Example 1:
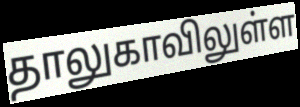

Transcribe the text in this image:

தாலுகாவிலுள்ள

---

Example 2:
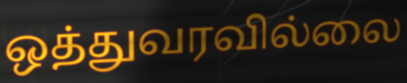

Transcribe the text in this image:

ஒத்துவரவில்லை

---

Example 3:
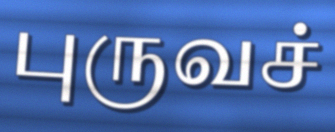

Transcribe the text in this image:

புருவச்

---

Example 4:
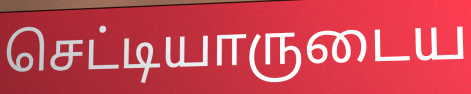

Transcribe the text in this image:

செட்டியாருடைய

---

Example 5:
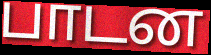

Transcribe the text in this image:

பாடன